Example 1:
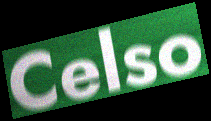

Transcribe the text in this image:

Celso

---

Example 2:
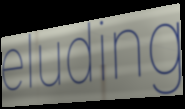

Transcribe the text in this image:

eluding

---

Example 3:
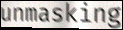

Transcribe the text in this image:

unmasking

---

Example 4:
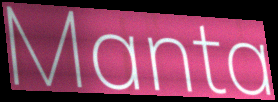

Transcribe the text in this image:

Manta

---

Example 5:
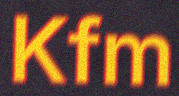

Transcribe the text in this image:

Kfm